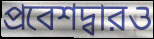
প্রবেশদ্বারও